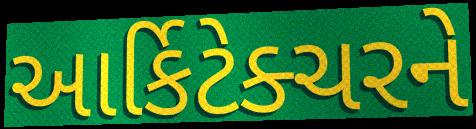
આર્કિટેક્ચરને